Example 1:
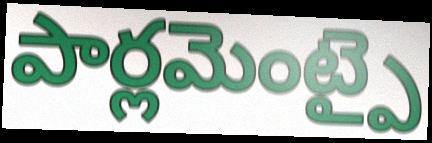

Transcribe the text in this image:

పార్లమెంట్పై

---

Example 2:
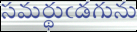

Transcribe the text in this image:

సమర్థుఁడగును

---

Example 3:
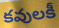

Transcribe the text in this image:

కవులకీ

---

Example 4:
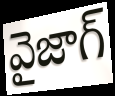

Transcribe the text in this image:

వైజాగ్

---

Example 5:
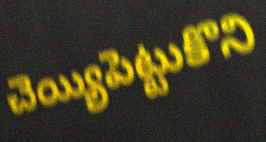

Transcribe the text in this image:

చెయ్యిపెట్టుకొని